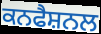
ਕਨਫੈਸ਼ਨਲ